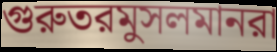
গুরুতরমুসলমানরা